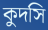
কুদসি